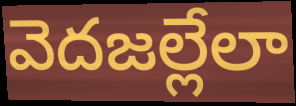
వెదజల్లేలా